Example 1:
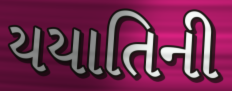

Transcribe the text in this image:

યયાતિની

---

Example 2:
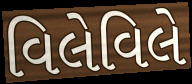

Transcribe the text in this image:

વિલેવિલે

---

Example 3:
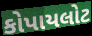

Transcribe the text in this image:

કોપાયલોટ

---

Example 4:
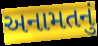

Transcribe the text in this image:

અનામતનું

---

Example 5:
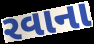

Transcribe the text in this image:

રવાના